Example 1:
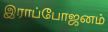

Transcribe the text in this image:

இராப்போஜனம்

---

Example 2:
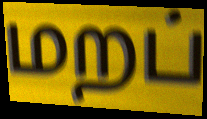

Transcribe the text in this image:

மறப்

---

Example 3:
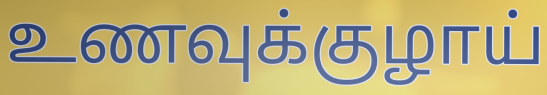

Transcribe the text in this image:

உணவுக்குழாய்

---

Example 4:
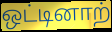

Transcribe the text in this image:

ஒட்டினாற்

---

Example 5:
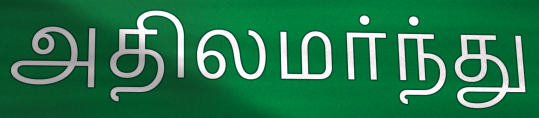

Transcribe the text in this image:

அதிலமர்ந்து